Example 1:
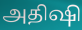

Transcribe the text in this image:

அதிஷி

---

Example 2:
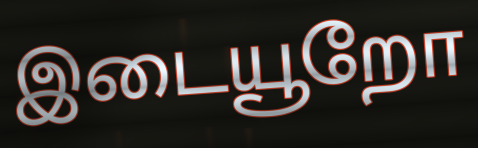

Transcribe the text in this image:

இடையூறோ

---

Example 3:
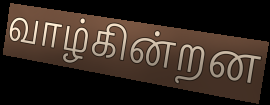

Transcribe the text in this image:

வாழ்கின்றன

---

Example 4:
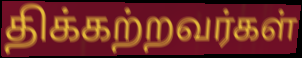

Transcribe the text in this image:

திக்கற்றவர்கள்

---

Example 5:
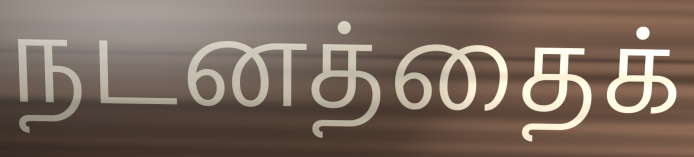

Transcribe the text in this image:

நடனத்தைக்